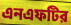
এনএফটির